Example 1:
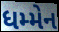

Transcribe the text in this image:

ધમ્મેન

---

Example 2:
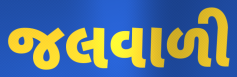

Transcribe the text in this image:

જલવાળી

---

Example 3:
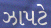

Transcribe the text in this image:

ઝાપટે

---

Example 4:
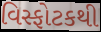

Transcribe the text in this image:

વિસ્ફોટકથી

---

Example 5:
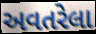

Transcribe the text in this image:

અવતરેલા